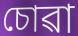
চোৱা